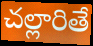
చల్లారితే